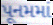
પૂનમમાં